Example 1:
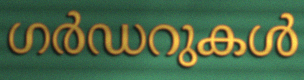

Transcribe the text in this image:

ഗർഡറുകൾ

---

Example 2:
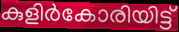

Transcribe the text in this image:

കുളിർകോരിയിട്ട്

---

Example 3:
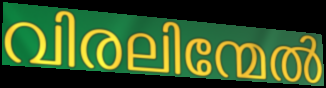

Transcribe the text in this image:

വിരലിന്മേൽ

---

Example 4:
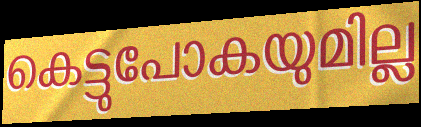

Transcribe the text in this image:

കെട്ടുപോകയുമില്ല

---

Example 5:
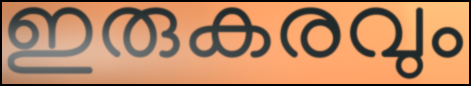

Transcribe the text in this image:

ഇരുകരവും